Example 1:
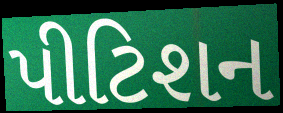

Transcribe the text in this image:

પીટિશન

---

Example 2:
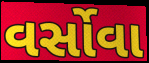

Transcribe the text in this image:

વર્સોવા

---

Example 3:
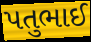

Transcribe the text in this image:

પતુભાઈ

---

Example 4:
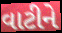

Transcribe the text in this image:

વાટીને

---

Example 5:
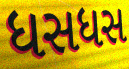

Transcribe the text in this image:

ધસધસ